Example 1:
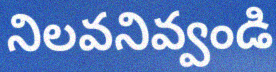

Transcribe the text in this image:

నిలవనివ్వండి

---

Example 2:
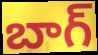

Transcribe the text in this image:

బాగ్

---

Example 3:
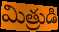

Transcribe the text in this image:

మిత్రుడి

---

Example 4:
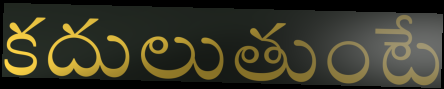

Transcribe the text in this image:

కదులుతుంటే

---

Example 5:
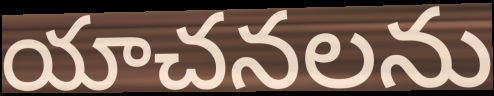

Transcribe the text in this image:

యాచనలను